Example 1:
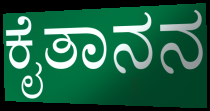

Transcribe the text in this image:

ಕೈತಾನನ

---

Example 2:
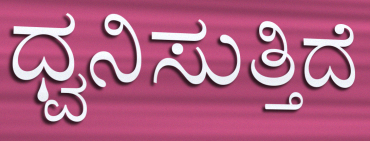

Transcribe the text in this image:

ಧ್ವನಿಸುತ್ತಿದೆ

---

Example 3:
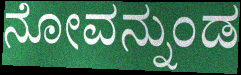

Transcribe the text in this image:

ನೋವನ್ನುಂಡ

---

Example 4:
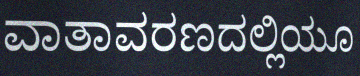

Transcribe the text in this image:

ವಾತಾವರಣದಲ್ಲಿಯೂ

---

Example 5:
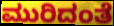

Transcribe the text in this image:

ಮುರಿದಂತೆ